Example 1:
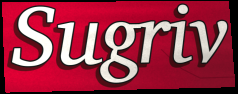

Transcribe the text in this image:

Sugriv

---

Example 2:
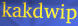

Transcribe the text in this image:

kakdwip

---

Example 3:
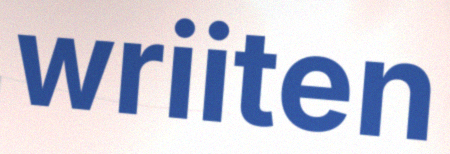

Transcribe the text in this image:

wriiten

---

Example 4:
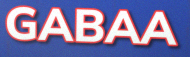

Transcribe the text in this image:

GABAA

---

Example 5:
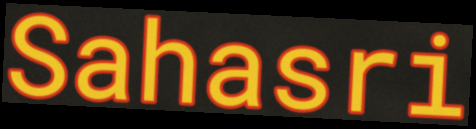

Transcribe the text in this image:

Sahasri